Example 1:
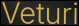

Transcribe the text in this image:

Veturi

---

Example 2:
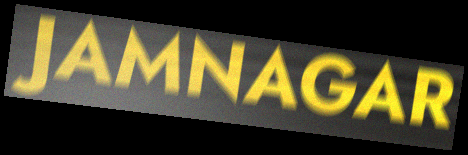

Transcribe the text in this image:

JAMNAGAR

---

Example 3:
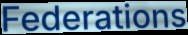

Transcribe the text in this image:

Federations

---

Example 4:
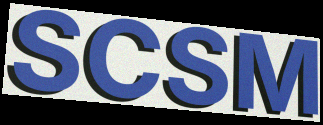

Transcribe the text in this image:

SCSM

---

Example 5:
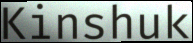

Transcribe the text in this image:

Kinshuk